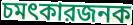
চমৎকারজনক